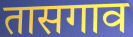
तासगाव